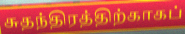
சுதந்திரத்திற்காகப்